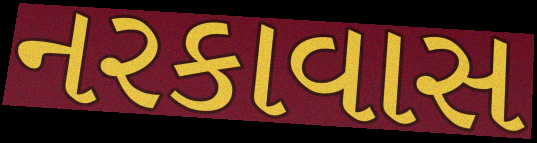
નરકાવાસ